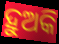
ହୁଅକି